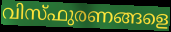
വിസ്ഫുരണങ്ങളെ